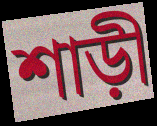
শাড়ী